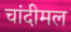
चांदीमल